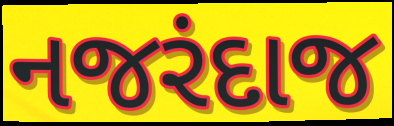
નજરંદાજ